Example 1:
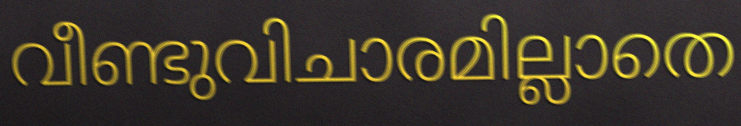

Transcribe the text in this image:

വീണ്ടുവിചാരമില്ലാതെ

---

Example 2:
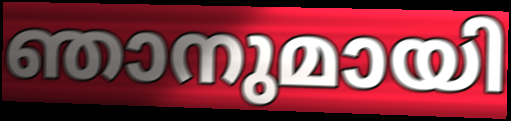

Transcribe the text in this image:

ഞാനുമായി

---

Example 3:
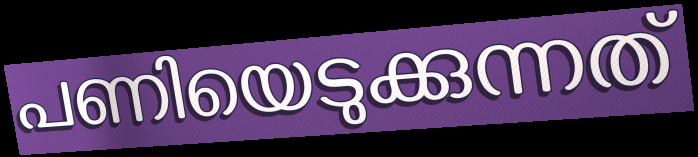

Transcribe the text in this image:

പണിയെടുക്കുന്നത്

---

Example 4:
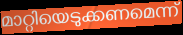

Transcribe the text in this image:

മാറ്റിയെടുക്കണമെന്ന്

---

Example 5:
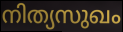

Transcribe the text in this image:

നിത്യസുഖം